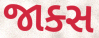
જાક્સ